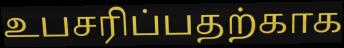
உபசரிப்பதற்காக